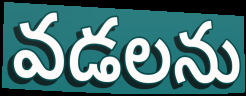
వడలను